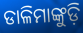
ଡାଳିମାଙ୍କୁଡ଼ି